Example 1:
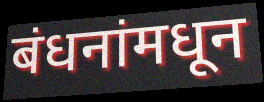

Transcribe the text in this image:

बंधनांमधून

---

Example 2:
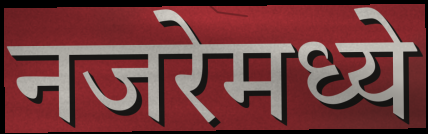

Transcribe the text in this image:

नजरेमध्ये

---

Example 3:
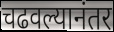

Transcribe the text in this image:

चढवल्यानंतर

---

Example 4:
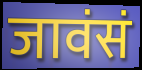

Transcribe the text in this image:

जावंसं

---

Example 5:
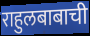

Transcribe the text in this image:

राहुलबाबाची